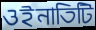
ওইনাতিটি